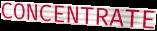
CONCENTRATE